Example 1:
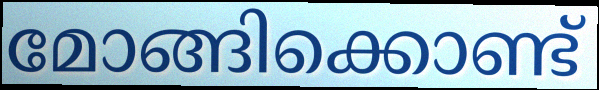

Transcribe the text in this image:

മോങ്ങിക്കൊണ്ട്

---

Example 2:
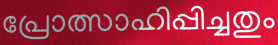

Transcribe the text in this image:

പ്രോത്സാഹിപ്പിച്ചതും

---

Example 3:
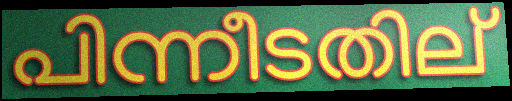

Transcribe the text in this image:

പിന്നീടതില്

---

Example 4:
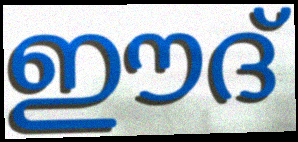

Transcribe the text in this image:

ഈദ്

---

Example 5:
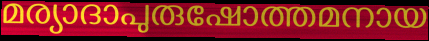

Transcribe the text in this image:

മര്യാദാപുരുഷോത്തമനായ